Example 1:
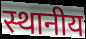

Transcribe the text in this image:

स्थानीय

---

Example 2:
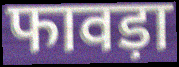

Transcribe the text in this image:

फावड़ा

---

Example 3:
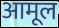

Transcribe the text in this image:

आमूल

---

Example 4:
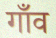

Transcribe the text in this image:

गाँव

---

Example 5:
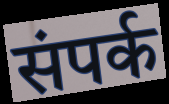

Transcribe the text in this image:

संपर्क